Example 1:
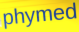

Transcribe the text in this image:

phymed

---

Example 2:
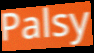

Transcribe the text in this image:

Palsy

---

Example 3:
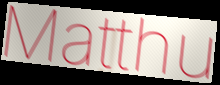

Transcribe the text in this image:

Matthu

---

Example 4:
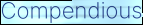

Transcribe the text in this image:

Compendious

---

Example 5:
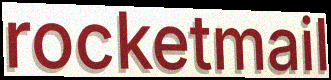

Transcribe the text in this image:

rocketmail